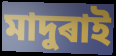
মাদুৰাই